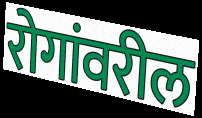
रोगांवरील